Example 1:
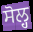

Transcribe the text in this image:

ਸੋਲ੍ਹ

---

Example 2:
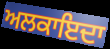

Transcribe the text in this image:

ਅਲਕਾਇਦਾ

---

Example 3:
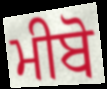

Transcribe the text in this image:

ਮੀਬੋ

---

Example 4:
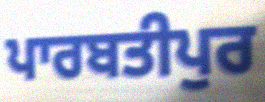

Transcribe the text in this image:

ਪਾਰਬਤੀਪੁਰ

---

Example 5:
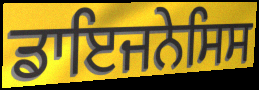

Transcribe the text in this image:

ਡਾਇਜਨੇਸਿਸ